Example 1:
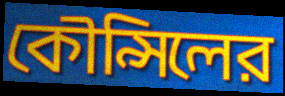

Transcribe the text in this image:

কৌন্সিলের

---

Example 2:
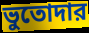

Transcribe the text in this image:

ভুতোদার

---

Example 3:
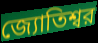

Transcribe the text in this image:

জ্যোতিশ্বর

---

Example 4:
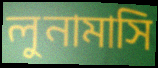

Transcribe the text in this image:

লুনামাসি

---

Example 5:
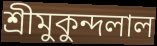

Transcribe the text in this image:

শ্রীমুকুন্দলাল